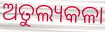
ଅତୁଲ୍ୟକଳା